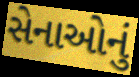
સેનાઓનું